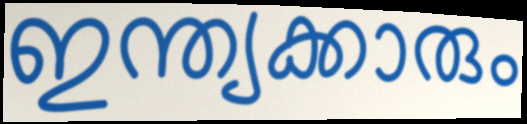
ഇന്ത്യക്കാരും